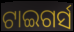
ଟାଇଗର୍ସ